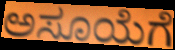
ಅಸೂಯೆಗೆ